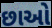
છાઓ